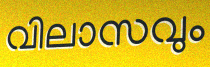
വിലാസവും